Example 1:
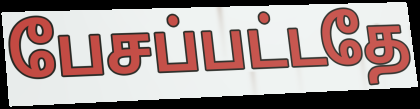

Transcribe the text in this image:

பேசப்பட்டதே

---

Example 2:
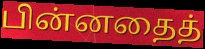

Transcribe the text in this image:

பின்னதைத்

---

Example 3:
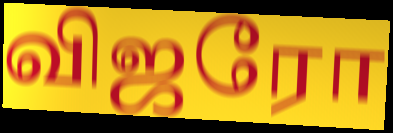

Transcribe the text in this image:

விஜரோ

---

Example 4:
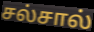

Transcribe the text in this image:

சல்சால்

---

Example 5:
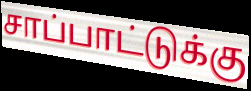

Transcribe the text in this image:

சாப்பாட்டுக்கு